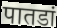
पातडां